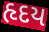
હૃદય